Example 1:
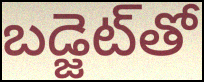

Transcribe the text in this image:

బడ్జెట్‌తో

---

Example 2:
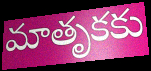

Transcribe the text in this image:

మాతృకకు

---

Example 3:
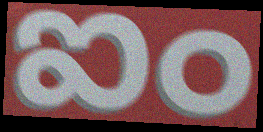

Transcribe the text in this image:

ఐం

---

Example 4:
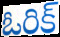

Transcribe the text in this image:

ఓరిక్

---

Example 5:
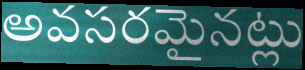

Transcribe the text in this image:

అవసరమైనట్లు